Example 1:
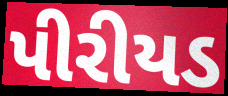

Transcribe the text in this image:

પીરીયડ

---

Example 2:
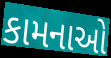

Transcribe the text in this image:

કામનાઓ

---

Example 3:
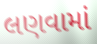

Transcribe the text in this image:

લણવામાં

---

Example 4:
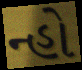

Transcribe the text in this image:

ન્હો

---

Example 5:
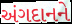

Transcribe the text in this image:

અંગદાનને